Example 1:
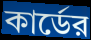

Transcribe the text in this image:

কার্ডের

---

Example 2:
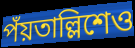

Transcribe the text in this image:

পঁয়তাল্লিশেও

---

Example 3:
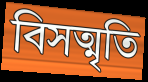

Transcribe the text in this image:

বিসত্মৃতি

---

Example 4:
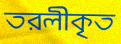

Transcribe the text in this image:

তরলীকৃত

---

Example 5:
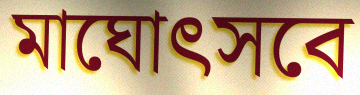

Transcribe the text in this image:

মাঘোৎসবে